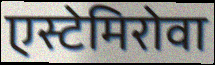
एस्टेमिरोवा